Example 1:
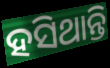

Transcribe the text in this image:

ହସିଥାନ୍ତି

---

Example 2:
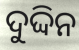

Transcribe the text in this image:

ଦୁଦ୍ଦିନ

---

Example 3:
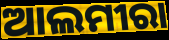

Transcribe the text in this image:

ଆଲମୀରା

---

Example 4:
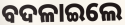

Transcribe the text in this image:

ବଦଳାଇଲେ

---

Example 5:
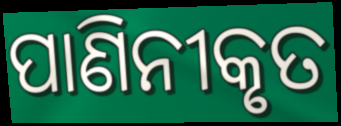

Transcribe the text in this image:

ପାଣିନୀକୃତ